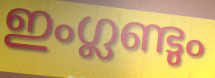
ഇംഗ്ലണ്ടും